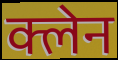
क्लेन